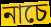
নাচে